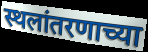
स्थलांतरणाच्या